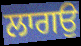
ਲਾਗਉ